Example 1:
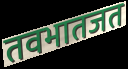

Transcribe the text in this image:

तवभातजत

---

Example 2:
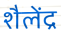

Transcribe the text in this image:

शैलेंद्र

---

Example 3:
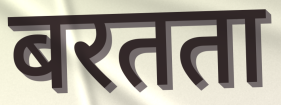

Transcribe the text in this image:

बरतता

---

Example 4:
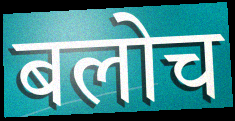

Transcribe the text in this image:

बलोच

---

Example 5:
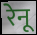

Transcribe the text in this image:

रेनू